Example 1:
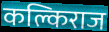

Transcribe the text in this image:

कल्किराज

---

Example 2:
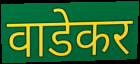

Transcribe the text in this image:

वाडेकर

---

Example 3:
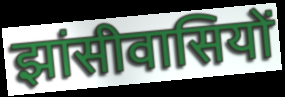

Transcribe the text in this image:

झांसीवासियों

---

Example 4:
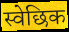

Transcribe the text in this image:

स्वेछिक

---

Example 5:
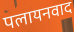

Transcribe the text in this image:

पलायनवाद